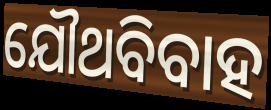
ଯୌଥବିବାହ